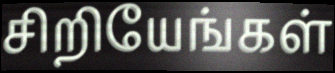
சிறியேங்கள்